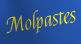
Molpastes